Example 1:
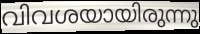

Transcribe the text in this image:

വിവശയായിരുന്നു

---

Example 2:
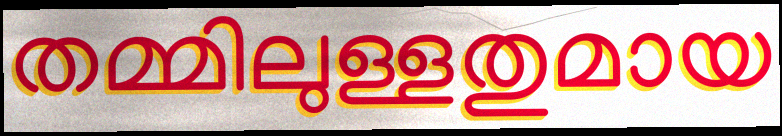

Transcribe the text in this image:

തമ്മിലുള്ളതുമായ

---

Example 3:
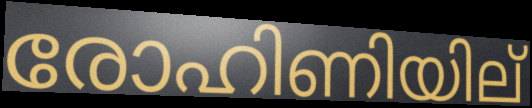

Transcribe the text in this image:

രോഹിണിയില്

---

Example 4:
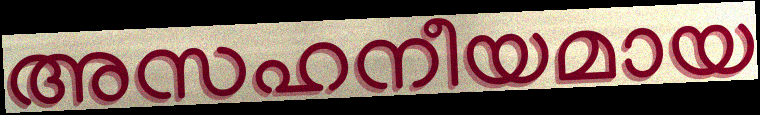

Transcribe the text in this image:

അസഹനീയമായ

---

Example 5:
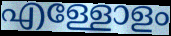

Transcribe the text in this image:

എള്ളോളം